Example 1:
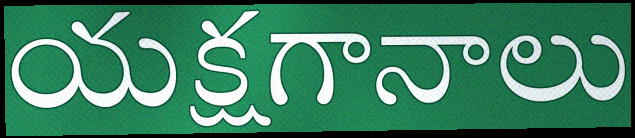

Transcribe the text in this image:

యక్షగానాలు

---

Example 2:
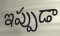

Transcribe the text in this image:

ఇప్పుడా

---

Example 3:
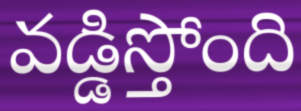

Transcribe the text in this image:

వడ్డిస్తోంది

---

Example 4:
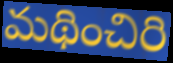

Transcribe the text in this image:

మథించిరి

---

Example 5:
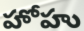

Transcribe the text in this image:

హోహు